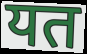
यत